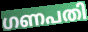
ഗണപതി